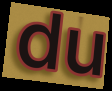
du